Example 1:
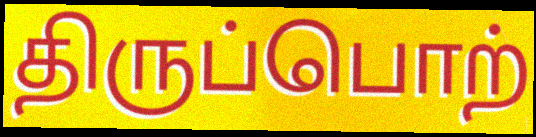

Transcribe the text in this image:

திருப்பொற்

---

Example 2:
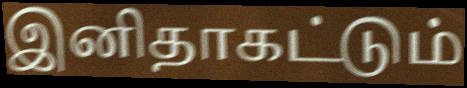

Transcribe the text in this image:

இனிதாகட்டும்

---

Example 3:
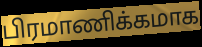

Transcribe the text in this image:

பிரமாணிக்கமாக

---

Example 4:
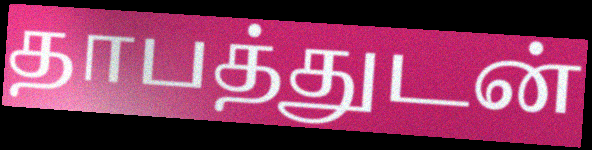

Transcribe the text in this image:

தாபத்துடன்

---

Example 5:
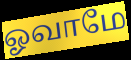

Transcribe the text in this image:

ஓவாமே